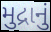
મુદ્રાનું